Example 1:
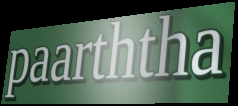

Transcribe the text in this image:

paarththa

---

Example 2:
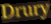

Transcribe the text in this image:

Drury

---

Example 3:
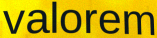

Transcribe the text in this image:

valorem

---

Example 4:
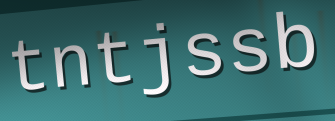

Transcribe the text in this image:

tntjssb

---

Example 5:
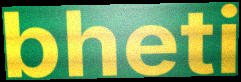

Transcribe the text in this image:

bheti